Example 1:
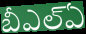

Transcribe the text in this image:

బీఎల్ఏ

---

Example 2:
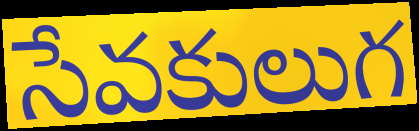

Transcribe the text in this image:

సేవకులుగ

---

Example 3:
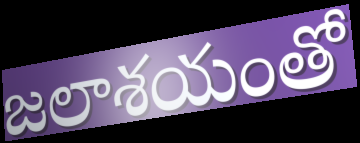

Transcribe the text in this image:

జలాశయంతో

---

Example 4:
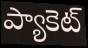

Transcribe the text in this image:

ప్యాకెట్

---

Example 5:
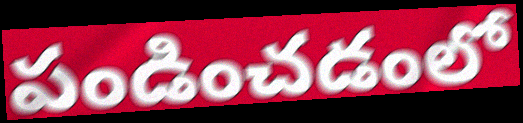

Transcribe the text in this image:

పండించడంలో